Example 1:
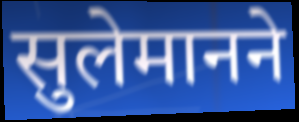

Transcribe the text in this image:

सुलेमानने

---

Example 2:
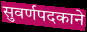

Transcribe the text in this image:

सुवर्णपदकाने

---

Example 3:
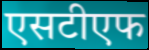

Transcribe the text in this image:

एसटीएफ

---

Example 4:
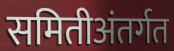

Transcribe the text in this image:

समितीअंतर्गत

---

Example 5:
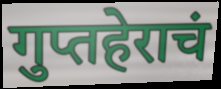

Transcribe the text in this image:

गुप्तहेराचं